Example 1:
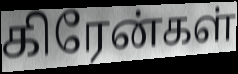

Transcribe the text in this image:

கிரேன்கள்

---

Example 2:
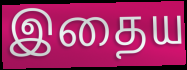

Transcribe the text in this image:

இதைய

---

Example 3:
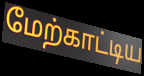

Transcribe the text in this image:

மேற்காட்டிய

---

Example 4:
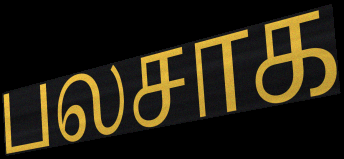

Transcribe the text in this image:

பலசாக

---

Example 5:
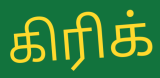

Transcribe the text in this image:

கிரிக்